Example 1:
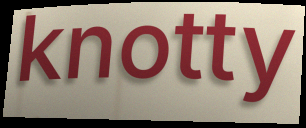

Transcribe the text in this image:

knotty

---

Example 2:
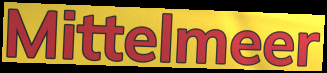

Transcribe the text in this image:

Mittelmeer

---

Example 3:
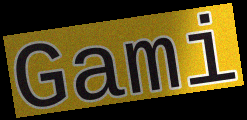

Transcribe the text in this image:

Gami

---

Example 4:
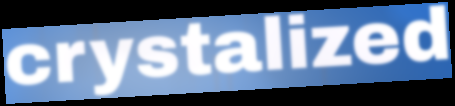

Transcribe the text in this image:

crystalized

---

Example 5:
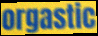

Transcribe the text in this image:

orgastic